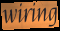
wiring